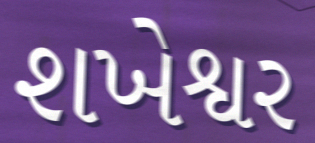
શખેશ્વર